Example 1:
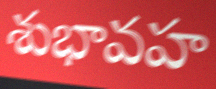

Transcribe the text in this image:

శుభావహ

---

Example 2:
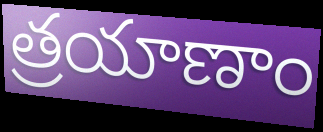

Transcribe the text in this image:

త్రయాణాం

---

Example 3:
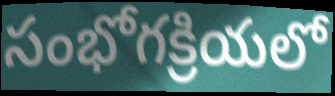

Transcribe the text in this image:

సంభోగక్రియలో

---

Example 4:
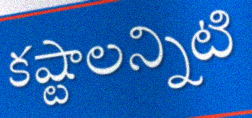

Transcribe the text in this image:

కష్టాలన్నిటి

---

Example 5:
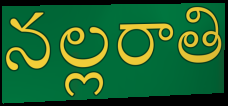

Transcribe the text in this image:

నల్లరాతి